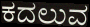
ಕದಲುವ